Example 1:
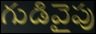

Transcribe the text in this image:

గుడివైపు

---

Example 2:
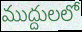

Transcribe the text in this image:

ముద్దులలో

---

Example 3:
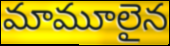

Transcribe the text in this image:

మామూలైన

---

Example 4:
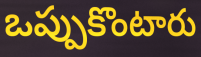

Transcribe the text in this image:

ఒప్పుకొంటారు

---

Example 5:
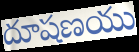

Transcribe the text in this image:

దూషణయు